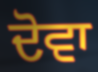
ਦੋਵਾ